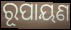
ରୂପାୟଣ